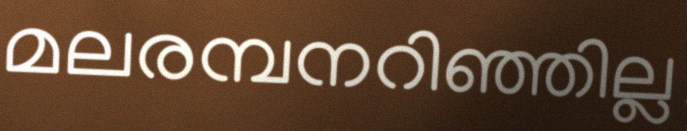
മലരമ്പനറിഞ്ഞില്ല